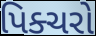
પિક્ચરો